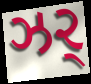
ઝર્